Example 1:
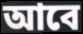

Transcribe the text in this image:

আবে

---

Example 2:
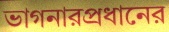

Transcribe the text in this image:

ভাগনারপ্রধানের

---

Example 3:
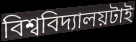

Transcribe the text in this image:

বিশ্ববিদ্যালয়টাই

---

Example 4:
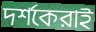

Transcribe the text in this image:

দর্শকেরাই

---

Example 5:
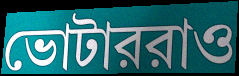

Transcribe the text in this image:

ভোটাররাও